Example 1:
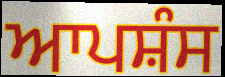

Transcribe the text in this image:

ਆਪਸ਼ੰਸ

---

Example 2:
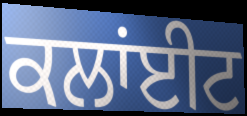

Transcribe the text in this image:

ਕਲਾਂਈਟ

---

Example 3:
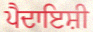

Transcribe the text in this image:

ਪੈਦਾਇਸ਼ੀ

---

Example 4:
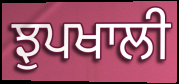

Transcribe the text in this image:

ਝੁਪਖਾਲੀ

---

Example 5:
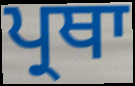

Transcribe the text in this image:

ਪ੍ਰਥਾ